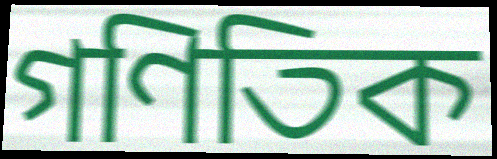
গণিতিক